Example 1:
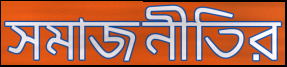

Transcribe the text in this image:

সমাজনীতির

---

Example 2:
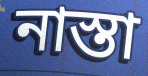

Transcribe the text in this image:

নাস্তা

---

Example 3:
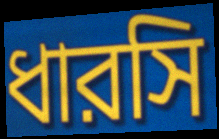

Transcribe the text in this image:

ধারসি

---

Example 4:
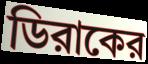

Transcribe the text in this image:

ডিরাকের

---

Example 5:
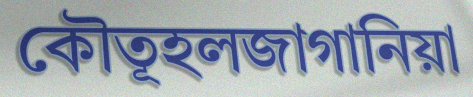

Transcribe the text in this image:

কৌতূহলজাগানিয়া